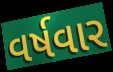
વર્ષવાર